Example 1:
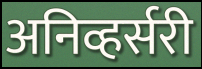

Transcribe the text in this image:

अनिव्हर्सरी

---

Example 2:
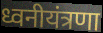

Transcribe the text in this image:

ध्वनीयंत्रणा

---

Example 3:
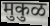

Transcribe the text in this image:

मुकुळ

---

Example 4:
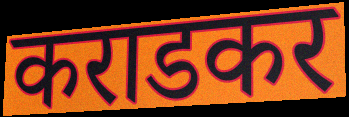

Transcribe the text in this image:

कराडकर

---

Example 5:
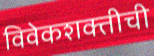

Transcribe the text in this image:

विवेकशक्तीची